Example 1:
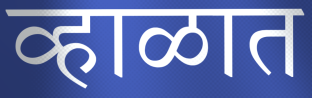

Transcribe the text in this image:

व्हाळात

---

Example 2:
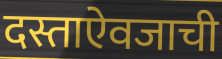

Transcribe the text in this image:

दस्ताऐवजाची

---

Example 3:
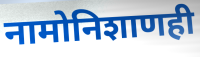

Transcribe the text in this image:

नामोनिशाणही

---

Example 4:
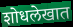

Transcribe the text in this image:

शोधलेखात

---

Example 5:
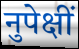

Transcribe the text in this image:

नुपेक्षीं